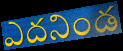
ఎదనిండ